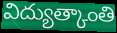
విద్యుత్కాంతి